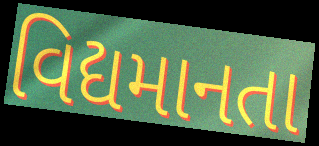
વિદ્યમાનતા